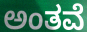
ಅಂತವೆ